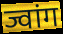
ज्वांग